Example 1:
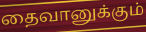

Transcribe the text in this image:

தைவானுக்கும்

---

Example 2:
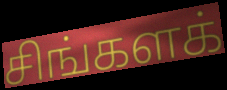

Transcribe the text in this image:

சிங்களக்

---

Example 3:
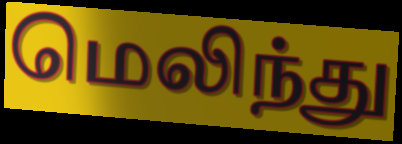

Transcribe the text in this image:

மெலிந்து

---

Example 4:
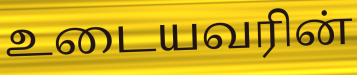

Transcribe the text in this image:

உடையவரின்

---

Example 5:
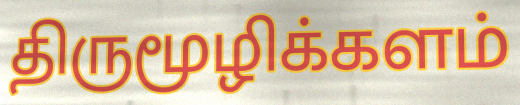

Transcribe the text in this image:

திருமூழிக்களம்